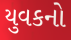
યુવકનો